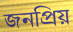
জনপ্ৰিয়